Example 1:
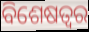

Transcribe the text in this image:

ବିଶେଷତ୍ବର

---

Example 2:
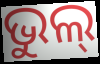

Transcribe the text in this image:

ଭୁଲ୍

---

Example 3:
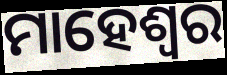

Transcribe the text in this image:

ମାହେଶ୍ଵର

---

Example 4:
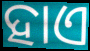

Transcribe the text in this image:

ହାଏ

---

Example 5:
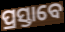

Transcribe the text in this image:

ପ୍ରସ୍ତାବେ